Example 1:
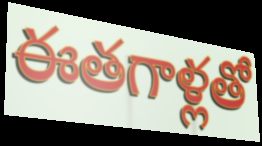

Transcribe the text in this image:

ఈతగాళ్లతో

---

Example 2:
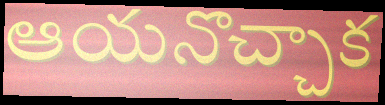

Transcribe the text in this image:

ఆయనొచ్చాక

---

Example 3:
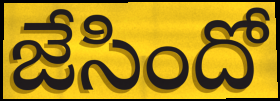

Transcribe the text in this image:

జేసిందో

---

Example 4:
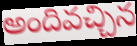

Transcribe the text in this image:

అందివచ్చిన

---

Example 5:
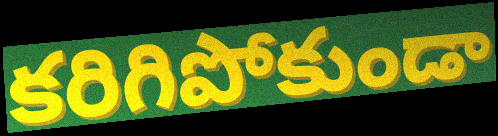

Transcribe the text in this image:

కరిగిపోకుండా